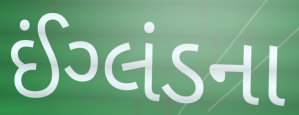
ઈંગ્લંડના